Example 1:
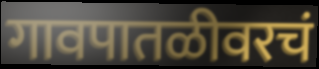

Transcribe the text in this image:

गावपातळीवरचं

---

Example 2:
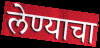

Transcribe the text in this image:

लेण्याचा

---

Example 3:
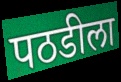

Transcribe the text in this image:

पठडीला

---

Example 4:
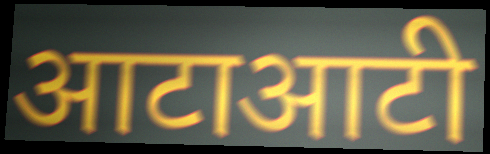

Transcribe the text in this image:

आटाआटी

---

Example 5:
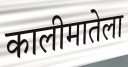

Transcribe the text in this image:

कालीमातेला